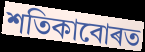
শতিকাবোৰত